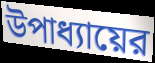
উপাধ্যায়ের